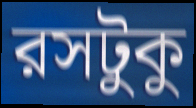
রসটুকু